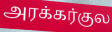
அரக்கர்குல